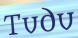
Tudu